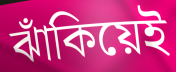
ঝাঁকিয়েই